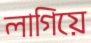
লাগিয়ে